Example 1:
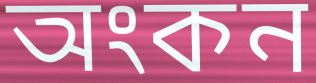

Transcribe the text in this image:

অংকন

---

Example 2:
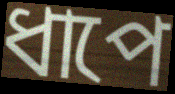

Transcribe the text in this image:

ধাপে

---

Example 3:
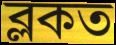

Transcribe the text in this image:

ব্লকত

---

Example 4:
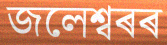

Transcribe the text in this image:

জলেশ্বৰৰ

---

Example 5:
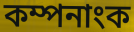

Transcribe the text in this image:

কম্পনাংক